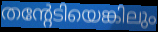
തന്റേടിയെങ്കിലും